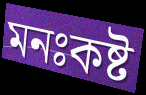
মনঃকষ্ট